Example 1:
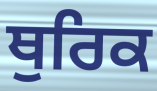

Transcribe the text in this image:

ਥੁਰਿਕ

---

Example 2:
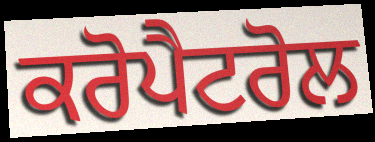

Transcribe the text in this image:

ਕਰੋਪੈਟਰੋਲ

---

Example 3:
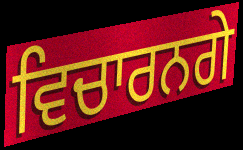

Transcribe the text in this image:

ਵਿਚਾਰਨਗੇ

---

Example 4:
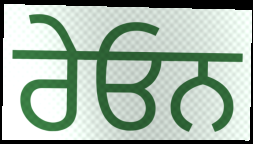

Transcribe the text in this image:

ਰੇਓਨ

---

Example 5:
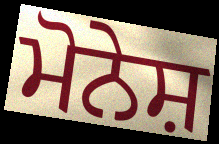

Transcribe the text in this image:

ਮੋਨੇਸ਼